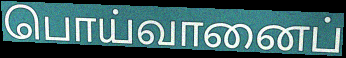
பொய்வானைப்